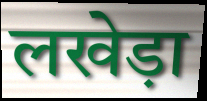
लखेड़ा